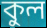
কুল